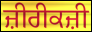
ਜ਼ੀਰੀਕਜ਼ੀ